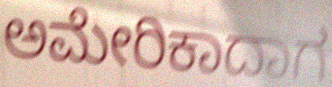
ಅಮೇರಿಕಾದಾಗ